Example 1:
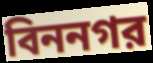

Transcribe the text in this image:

বিননগর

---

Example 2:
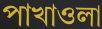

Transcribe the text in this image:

পাখাওলা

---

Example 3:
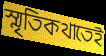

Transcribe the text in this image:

স্মৃতিকথাতেই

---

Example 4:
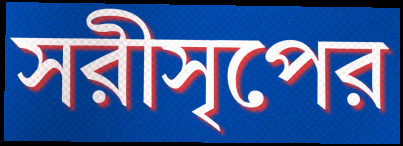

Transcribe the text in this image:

সরীসৃপের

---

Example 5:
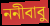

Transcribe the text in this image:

ননীবাবু